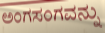
ಅಂಗಸಂಗವನ್ನು